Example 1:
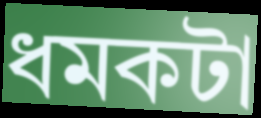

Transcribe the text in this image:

ধমকটা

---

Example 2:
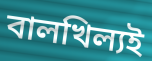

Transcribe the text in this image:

বালখিল্যই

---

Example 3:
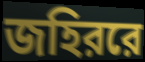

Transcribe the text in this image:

জহিররে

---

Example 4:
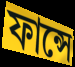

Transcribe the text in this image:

ফান্সে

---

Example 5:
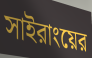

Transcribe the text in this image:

সাইরাংয়ের